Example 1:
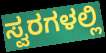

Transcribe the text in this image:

ಸ್ವರಗಳಲ್ಲಿ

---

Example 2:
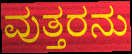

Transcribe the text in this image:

ವುತ್ತರನು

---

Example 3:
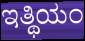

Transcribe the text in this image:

ಇತ್ಥಿಯಂ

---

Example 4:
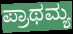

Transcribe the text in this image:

ಪ್ರಾಥಮ್ಯ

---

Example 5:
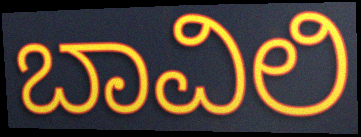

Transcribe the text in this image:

ಬಾವಿಲಿ